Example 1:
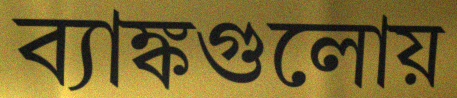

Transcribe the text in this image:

ব্যাঙ্কগুলোয়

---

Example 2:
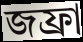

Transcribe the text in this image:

জফ্রা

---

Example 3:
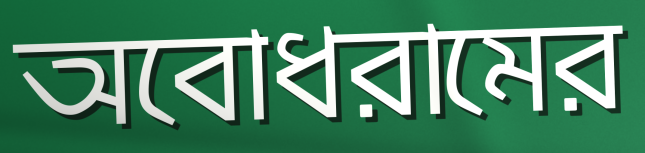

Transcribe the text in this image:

অবোধরামের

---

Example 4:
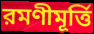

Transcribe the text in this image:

রমণীমূর্ত্তি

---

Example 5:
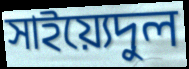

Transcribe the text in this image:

সাইয়্যেদুল